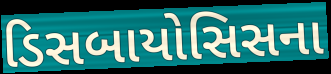
ડિસબાયોસિસના